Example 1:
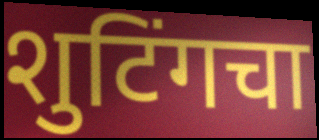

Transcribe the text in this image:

शुटिंगचा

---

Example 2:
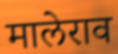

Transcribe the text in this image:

मालेराव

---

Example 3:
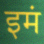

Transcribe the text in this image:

इमं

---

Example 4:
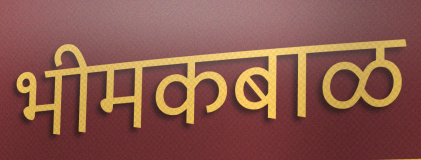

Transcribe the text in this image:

भीमकबाळ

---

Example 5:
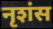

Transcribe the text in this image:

नृशंस